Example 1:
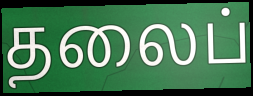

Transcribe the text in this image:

தலைப்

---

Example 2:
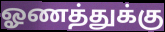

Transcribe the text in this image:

ஓணத்துக்கு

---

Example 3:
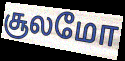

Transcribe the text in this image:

சூலமோ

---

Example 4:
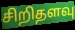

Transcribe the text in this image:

சிறிதளவு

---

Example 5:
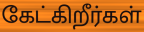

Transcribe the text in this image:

கேட்கிறீர்கள்